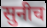
सुनीच